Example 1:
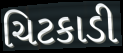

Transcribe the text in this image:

ચિટકાડી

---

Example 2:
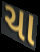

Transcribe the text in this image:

ચા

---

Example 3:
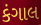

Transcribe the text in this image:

કંગાલ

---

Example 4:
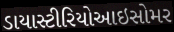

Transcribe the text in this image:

ડાયાસ્ટીરિયોઆઇસોમર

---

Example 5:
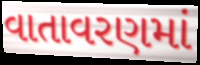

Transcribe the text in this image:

વાતાવરણમાં